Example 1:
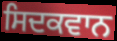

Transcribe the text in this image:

ਸਿਦਕਵਾਨ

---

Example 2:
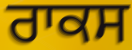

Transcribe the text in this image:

ਰਾਕਸ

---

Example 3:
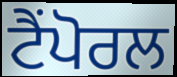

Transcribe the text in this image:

ਟੈਂਪੋਰਲ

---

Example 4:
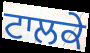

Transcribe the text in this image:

ਟਾਲਕੇ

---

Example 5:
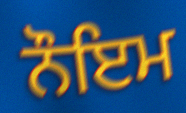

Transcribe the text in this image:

ਨੌਇਮ